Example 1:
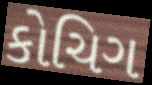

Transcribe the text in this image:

કોચિગ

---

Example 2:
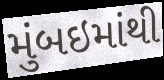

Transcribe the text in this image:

મુંબઇમાંથી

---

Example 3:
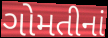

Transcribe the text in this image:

ગોમતીનાં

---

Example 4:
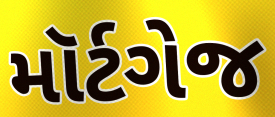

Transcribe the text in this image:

મૉર્ટગેજ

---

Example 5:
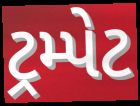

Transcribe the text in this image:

ટ્રમ્પેટ